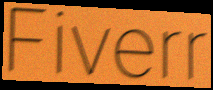
Fiverr